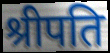
श्रीपति